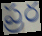
ప్రర